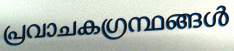
പ്രവാചകഗ്രന്ഥങ്ങൾ